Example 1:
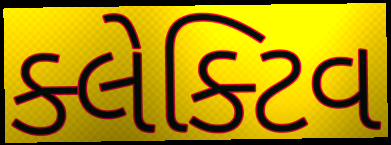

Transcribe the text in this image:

ક્લેક્ટિવ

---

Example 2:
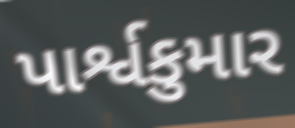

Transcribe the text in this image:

પાર્શ્વકુમાર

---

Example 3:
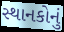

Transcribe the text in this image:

સ્થાનકોનું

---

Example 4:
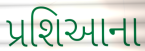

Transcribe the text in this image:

પ્રશિઆના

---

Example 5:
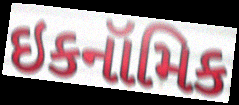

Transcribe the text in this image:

ઇકનૉમિક